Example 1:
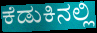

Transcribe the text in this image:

ಕೆಡುಕಿನಲ್ಲಿ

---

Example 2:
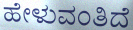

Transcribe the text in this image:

ಹೇಳುವಂತಿದೆ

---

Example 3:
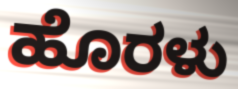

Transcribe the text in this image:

ಹೊರಳು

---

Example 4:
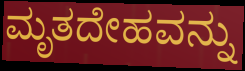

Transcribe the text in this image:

ಮೃತದೇಹವನ್ನು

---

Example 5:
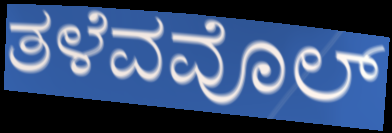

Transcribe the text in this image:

ತಳೆವವೊಲ್